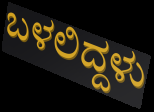
ಬಳಲಿದ್ದಳು